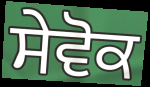
ਸੇਵੋਕ